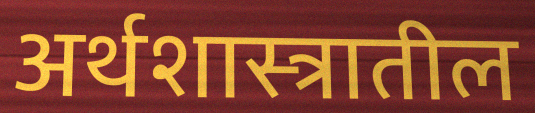
अर्थशास्त्रातील